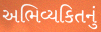
અભિવ્યકિતનું